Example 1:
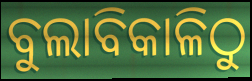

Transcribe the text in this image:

ବୁଲାବିକାଳିଠୁ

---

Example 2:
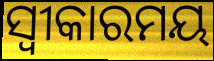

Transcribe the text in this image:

ସ୍ଵୀକାରମୟ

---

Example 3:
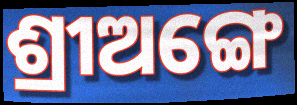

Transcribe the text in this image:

ଶ୍ରୀଅଙ୍ଗେ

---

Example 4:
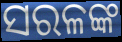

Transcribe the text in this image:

ସରଳଙ୍କ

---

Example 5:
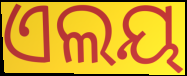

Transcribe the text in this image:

ଏଲୟ